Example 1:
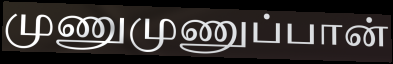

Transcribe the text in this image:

முணுமுணுப்பான்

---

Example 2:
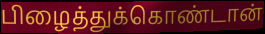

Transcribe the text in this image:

பிழைத்துக்கொண்டான்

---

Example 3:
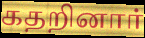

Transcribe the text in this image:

கதறினார்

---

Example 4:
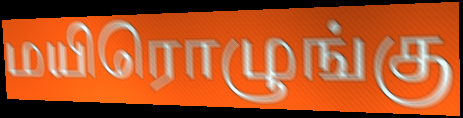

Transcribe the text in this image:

மயிரொழுங்கு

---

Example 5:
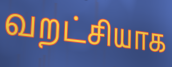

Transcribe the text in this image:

வறட்சியாக